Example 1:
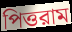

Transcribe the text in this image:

পিত্তরাম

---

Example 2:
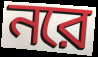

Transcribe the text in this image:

নরে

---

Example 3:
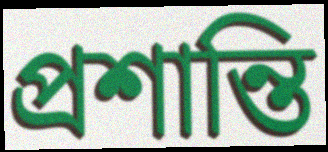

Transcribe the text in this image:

প্রশান্তি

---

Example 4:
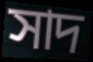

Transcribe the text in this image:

সাদ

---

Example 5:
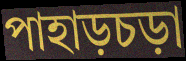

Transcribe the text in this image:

পাহাড়চড়া